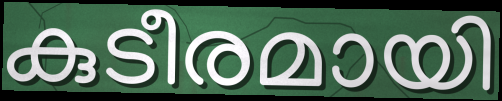
കുടീരമായി